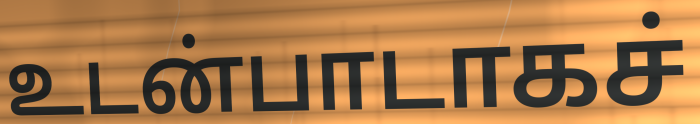
உடன்பாடாகச்